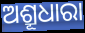
ଅଶ୍ରୂଧାରା